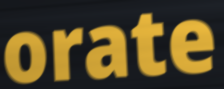
orate